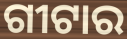
ଗୀଟାର